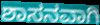
ಶಾಸನವಾಗಿ